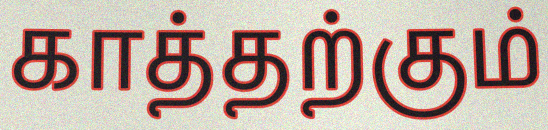
காத்தற்கும்